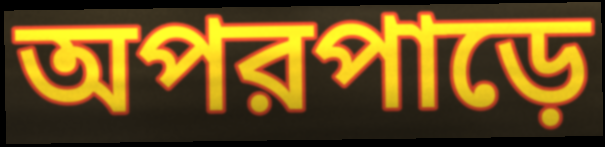
অপরপাড়ে